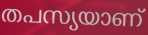
തപസ്യയാണ്